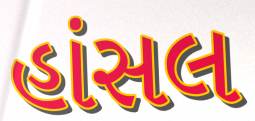
હાંસલ